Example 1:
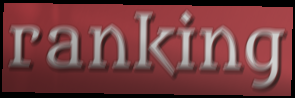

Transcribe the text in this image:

ranking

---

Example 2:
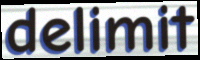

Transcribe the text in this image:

delimit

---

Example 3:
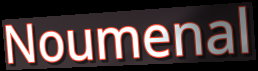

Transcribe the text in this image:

Noumenal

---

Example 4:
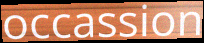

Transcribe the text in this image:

occassion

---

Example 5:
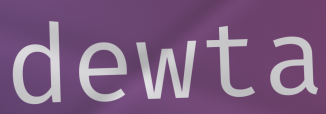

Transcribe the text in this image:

dewta